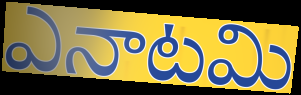
ఎనాటమి